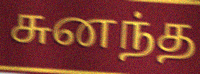
சுனந்த